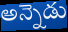
అన్నెడు